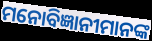
ମନୋବିଜ୍ଞାନୀମାନଙ୍କ